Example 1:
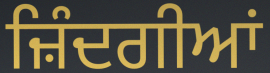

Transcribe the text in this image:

ਜ਼ਿੰਦਗੀਆਂ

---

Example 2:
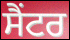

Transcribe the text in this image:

ਸੈਂਟਰ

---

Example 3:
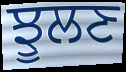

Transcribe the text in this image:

ਝੂਲਣ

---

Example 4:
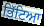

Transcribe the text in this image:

ਭਿੱਟਿਆ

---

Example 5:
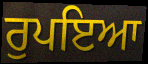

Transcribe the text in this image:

ਰੁਪਇਆ